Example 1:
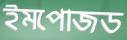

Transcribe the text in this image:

ইমপোজড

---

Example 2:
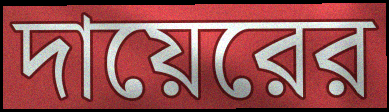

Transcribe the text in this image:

দায়েরের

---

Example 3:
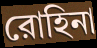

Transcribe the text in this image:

রোহিনা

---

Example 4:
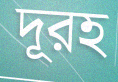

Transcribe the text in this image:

দূরহ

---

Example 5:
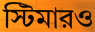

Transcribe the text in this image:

স্টিমারও